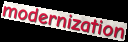
modernization